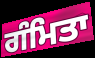
ਗੰਮਿਤਾ